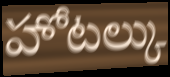
హోటల్కు